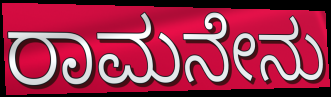
ರಾಮನೇನು